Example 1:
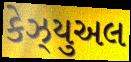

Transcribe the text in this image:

કેઝ્યુઅલ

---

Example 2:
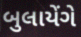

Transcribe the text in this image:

બુલાયેંગે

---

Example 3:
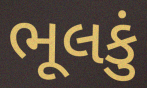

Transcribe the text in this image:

ભૂલકું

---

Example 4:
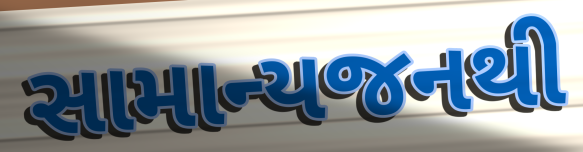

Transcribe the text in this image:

સામાન્યજનથી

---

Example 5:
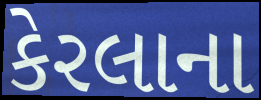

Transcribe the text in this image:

કેરલાના